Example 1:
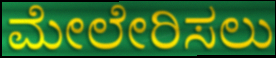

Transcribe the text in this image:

ಮೇಲೇರಿಸಲು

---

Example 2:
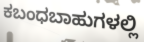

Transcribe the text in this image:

ಕಬಂಧಬಾಹುಗಳಲ್ಲಿ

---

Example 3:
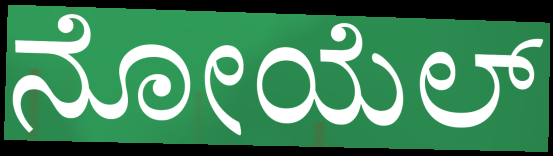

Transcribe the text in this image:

ನೋಯೆಲ್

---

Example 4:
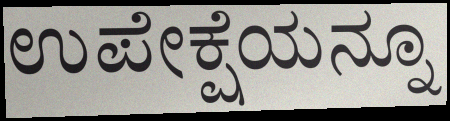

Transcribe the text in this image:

ಉಪೇಕ್ಷೆಯನ್ನೂ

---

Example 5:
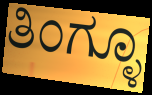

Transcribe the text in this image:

ತಿಂಗ್ಳೂ